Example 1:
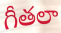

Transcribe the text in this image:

గీతలా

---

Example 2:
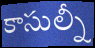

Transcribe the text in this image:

కాసుల్నీ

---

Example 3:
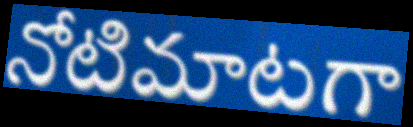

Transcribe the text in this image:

నోటిమాటగా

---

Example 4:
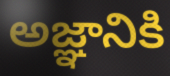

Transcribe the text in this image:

అజ్ఞానికి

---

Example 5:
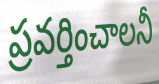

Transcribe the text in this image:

ప్రవర్తించాలనీ